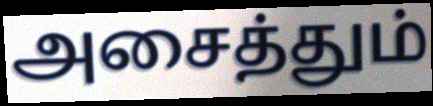
அசைத்தும்